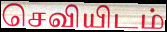
செவியிடம்